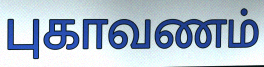
புகாவணம்